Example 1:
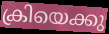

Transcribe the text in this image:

ക്രിയെക്കു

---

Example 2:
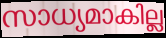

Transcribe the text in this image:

സാധ്യമാകില്ല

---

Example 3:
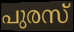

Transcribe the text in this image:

പുരസ്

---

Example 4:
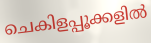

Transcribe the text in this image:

ചെകിളപ്പൂക്കളിൽ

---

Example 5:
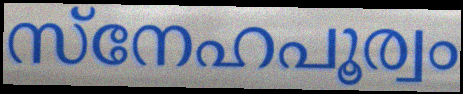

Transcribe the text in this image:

സ്നേഹപൂര്വം